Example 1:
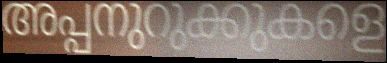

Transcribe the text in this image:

അപ്പനുറുക്കുകളെ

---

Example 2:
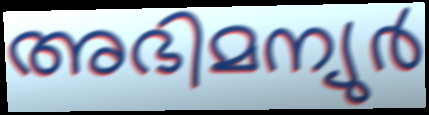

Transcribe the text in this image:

അഭിമന്യുർ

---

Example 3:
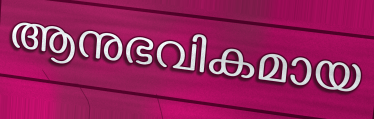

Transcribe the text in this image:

ആനുഭവികമായ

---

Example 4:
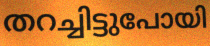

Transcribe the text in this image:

തറച്ചിട്ടുപോയി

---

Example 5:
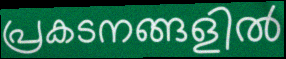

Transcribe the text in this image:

പ്രകടനങ്ങളിൽ